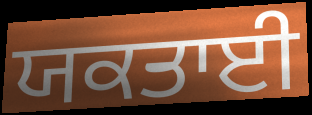
ਯਕਤਾਈ